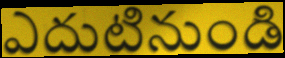
ఎదుటినుండి